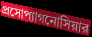
প্রসোপ্যাগনোসিয়ার